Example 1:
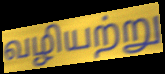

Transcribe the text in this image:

வழியற்று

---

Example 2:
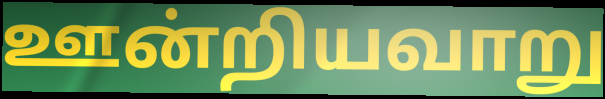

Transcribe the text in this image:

ஊன்றியவாறு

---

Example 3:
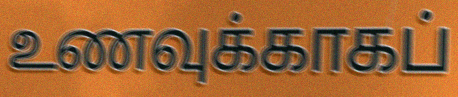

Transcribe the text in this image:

உணவுக்காகப்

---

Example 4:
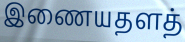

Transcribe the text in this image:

இணையதளத்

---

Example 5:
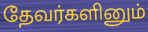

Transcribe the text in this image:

தேவர்களினும்